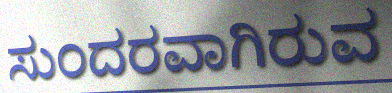
ಸುಂದರವಾಗಿರುವ